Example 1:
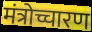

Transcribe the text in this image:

मंत्रोच्चारण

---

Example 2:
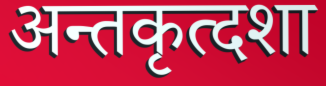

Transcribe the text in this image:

अन्तकृत्दशा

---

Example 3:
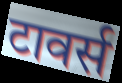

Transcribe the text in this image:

टावर्स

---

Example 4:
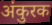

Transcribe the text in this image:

अंकुरक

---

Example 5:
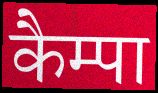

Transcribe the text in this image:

कैम्पा